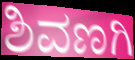
ಶಿವಣಗಿ